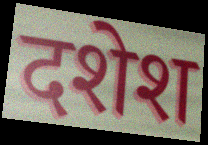
दशेश